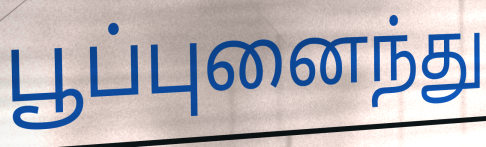
பூப்புனைந்து